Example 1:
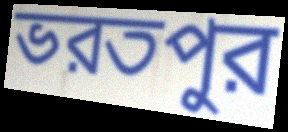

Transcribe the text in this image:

ভরতপুর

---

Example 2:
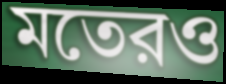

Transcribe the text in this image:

মতেরও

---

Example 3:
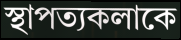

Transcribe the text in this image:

স্থাপত্যকলাকে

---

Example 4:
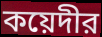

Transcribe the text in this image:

কয়েদীর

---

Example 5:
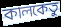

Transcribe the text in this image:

কালকেতু